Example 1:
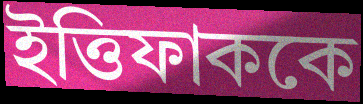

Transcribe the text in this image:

ইত্তিফাককে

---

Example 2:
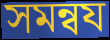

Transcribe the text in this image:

সমন্বয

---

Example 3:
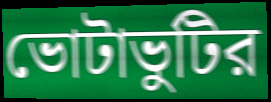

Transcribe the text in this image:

ভোটাভুটির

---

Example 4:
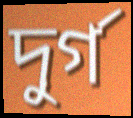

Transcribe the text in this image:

দুর্গ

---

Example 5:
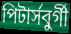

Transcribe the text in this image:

পিটার্সবুর্গী